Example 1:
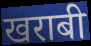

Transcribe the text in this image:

खराबी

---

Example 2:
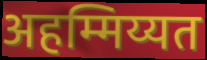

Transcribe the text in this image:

अहम्मिय्यत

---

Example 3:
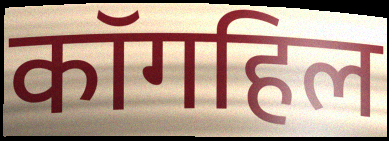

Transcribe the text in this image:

कॉगहिल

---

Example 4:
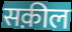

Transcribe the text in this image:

सक़ील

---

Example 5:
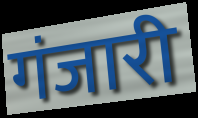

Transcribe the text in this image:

गंजारी